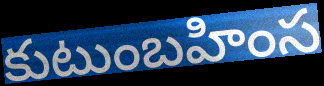
కుటుంబహింస